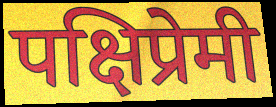
पक्षिप्रेमी